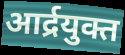
आर्द्रयुक्त